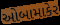
ઓબામાકેર